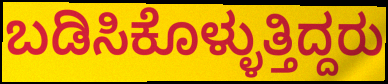
ಬಡಿಸಿಕೊಳ್ಳುತ್ತಿದ್ದರು